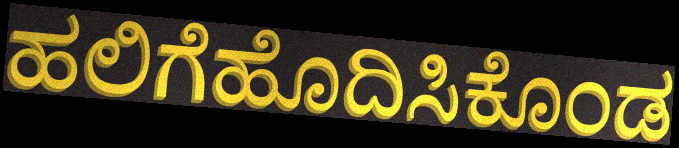
ಹಲಿಗೆಹೊದಿಸಿಕೊಂಡ